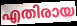
എതിരായ